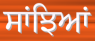
ਸਾਂਝਿਆਂ